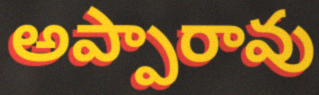
అప్పారావు